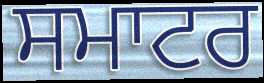
ਸਮਾਟਰ